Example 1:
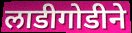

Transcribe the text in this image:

लाडीगोडीने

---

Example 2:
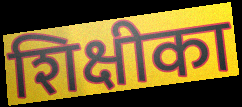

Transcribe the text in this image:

शिक्षीका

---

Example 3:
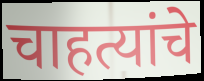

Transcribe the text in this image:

चाहत्यांचे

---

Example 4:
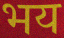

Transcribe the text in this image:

भय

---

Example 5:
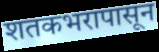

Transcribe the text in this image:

शतकभरापासून